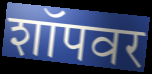
शॉपवर